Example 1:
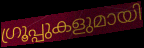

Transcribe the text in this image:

ഗ്രൂപ്പുകളുമായി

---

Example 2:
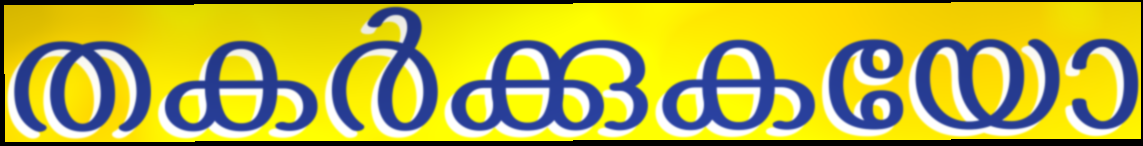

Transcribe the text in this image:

തകർക്കുകയോ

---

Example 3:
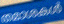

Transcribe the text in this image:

തമാശകൾ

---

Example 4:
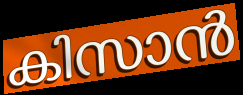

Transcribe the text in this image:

കിസാൻ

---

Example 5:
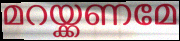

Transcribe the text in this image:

മറയ്ക്കണമേ